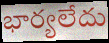
భార్యలేదు